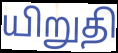
யிறுதி